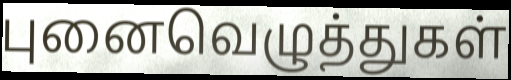
புனைவெழுத்துகள்